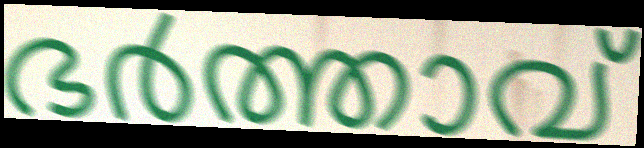
ഭർത്താവ്